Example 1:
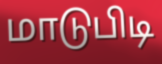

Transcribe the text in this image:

மாடுபிடி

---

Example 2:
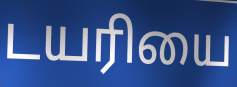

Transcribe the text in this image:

டயரியை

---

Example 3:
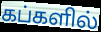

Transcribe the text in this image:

கப்களில்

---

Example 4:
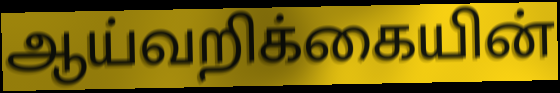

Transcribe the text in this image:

ஆய்வறிக்கையின்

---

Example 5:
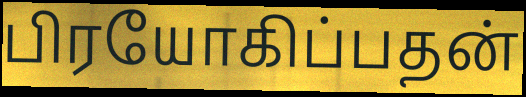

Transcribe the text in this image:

பிரயோகிப்பதன்